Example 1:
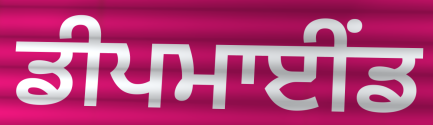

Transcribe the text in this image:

ਡੀਪਮਾਈਂਡ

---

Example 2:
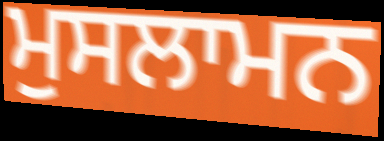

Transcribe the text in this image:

ਮੁਸਲਾਮਨ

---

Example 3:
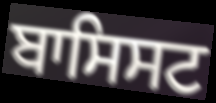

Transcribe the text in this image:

ਬਾਸਿਸਟ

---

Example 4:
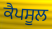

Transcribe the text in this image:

ਕੈਪਸੂਲ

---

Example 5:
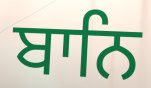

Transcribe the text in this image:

ਬਾਨਿ